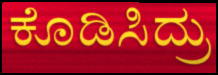
ಕೊಡಿಸಿದ್ರು